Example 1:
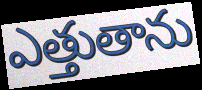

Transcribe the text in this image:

ఎత్తుతాను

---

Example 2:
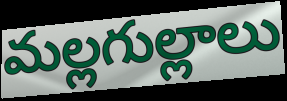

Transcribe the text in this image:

మల్లగుల్లాలు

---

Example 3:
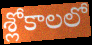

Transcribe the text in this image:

శ్లోకాలలో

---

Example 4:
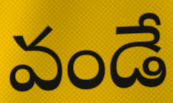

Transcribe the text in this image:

వండే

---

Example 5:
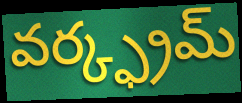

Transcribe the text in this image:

వర్క్ఫ్రమ్